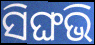
ସିଙ୍ଘଭି